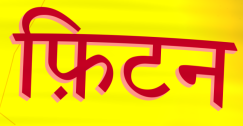
फ़िटन